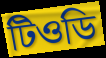
টিওডি